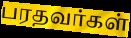
பரதவர்கள்